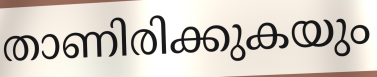
താണിരിക്കുകയും